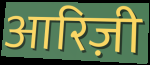
आरिज़ी